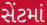
સેંટમાં